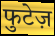
फुटेज़